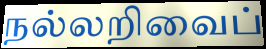
நல்லறிவைப்